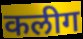
कलीग